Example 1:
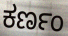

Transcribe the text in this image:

ಕರ್ಣಂ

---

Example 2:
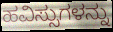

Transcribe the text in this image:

ಹವಿಸ್ಸುಗಳನ್ನು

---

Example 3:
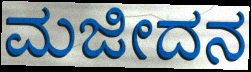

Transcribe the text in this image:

ಮಜೀದನ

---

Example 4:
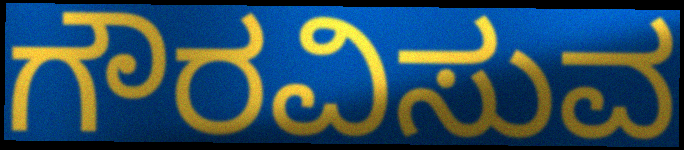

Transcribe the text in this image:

ಗೌರವಿಸುವ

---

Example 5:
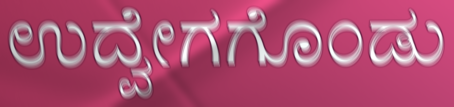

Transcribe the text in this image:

ಉದ್ವೇಗಗೊಂಡು